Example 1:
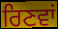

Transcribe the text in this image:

ਰਿਣਵਾਂ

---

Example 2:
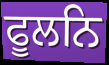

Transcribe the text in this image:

ਫੂਲਨਿ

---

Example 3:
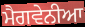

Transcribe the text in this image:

ਮੈਗਵੇਨੀਆ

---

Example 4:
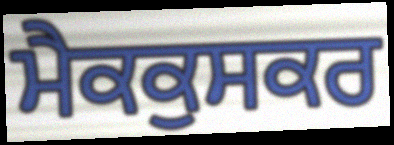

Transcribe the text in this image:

ਮੈਕਕੁਸਕਰ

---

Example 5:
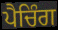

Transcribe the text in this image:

ਪੈਚਿੰਗ